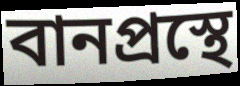
বানপ্রস্থে